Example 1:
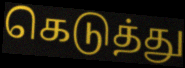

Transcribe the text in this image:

கெடுத்து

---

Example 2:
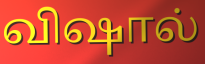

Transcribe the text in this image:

விஷால்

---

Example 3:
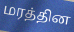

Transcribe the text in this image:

மரத்தின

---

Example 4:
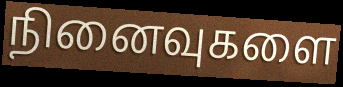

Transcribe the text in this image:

நினைவுகளை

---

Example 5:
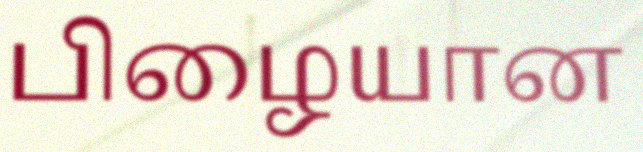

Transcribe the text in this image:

பிழையான